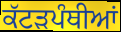
ਕੱਟੜਪੰਥੀਆਂ